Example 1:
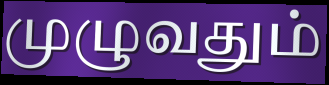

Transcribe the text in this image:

முழுவதும்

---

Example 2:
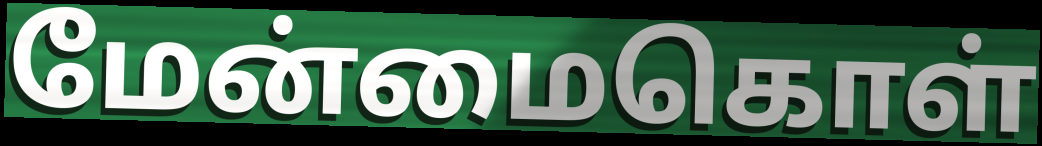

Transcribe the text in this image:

மேன்மைகொள்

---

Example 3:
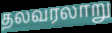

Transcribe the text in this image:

தலவரலாறு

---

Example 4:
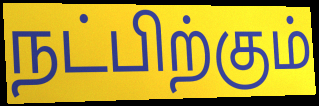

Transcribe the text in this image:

நட்பிற்கும்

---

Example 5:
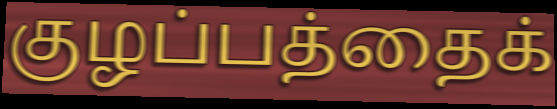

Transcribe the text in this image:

குழப்பத்தைக்